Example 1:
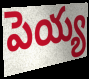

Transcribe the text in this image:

పెయ్య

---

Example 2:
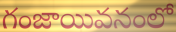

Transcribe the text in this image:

గంజాయివనంలో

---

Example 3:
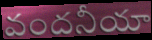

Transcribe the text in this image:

వందనీయా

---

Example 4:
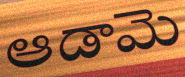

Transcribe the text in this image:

ఆడామె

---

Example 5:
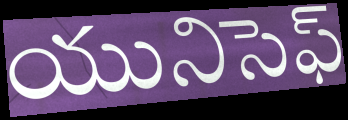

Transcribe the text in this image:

యునిసెఫ్